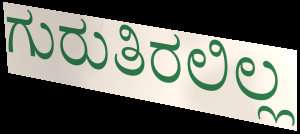
ಗುರುತಿರಲಿಲ್ಲ